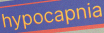
hypocapnia